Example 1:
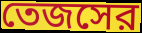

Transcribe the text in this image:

তেজসের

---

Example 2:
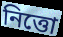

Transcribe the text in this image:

নিত্তো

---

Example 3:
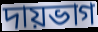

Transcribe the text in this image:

দায়ভাগ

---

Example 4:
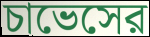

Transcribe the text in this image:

চাভেসের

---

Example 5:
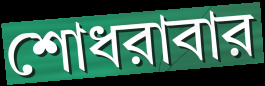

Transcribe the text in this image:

শোধরাবার